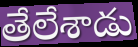
తేలేశాడు